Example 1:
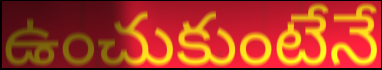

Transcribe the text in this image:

ఉంచుకుంటేనే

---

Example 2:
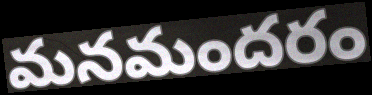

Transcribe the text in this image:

మనమందరం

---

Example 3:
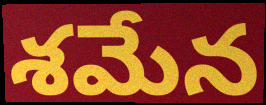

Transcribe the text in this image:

శమేన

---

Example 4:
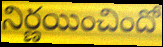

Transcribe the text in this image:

నిర్ణయించిందో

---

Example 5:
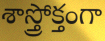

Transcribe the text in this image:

శాస్త్రోక్తంగా